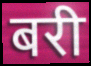
बरी